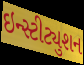
ઇન્સ્ટીટ્યુશન